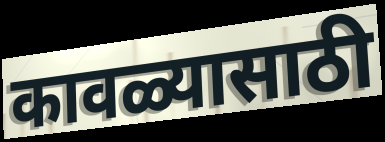
कावळ्यासाठी